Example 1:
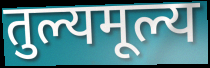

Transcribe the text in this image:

तुल्यमूल्य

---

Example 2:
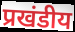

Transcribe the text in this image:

प्रखंडीय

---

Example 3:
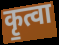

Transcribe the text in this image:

कृ॒त्वा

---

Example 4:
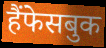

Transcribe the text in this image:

हैंफेसबुक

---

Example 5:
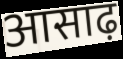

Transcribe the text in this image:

आसाढ़